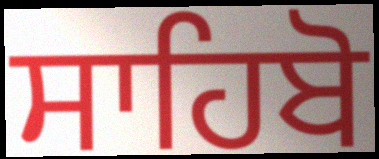
ਸਾਹਿਬੋ